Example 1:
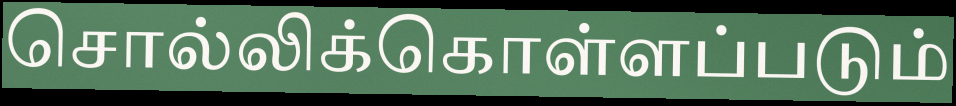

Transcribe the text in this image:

சொல்லிக்கொள்ளப்படும்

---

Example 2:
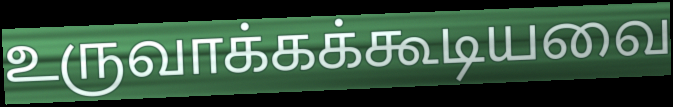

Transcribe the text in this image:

உருவாக்கக்கூடியவை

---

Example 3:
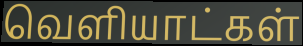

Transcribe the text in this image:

வெளியாட்கள்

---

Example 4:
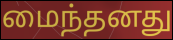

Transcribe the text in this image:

மைந்தனது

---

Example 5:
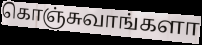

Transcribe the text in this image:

கொஞ்சுவாங்களா